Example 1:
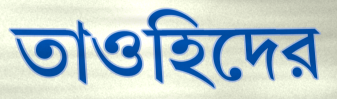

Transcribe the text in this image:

তাওহিদের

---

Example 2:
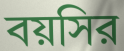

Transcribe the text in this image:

বয়সির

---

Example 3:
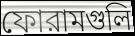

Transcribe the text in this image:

ফোরামগুলি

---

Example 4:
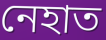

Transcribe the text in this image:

নেহাত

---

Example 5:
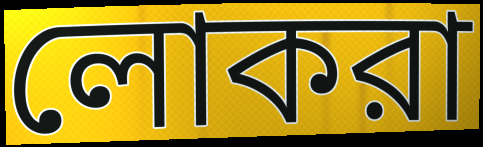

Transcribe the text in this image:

লোকরা